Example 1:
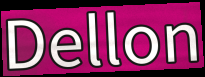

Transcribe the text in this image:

Dellon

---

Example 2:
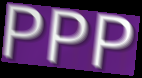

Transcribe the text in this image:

PPP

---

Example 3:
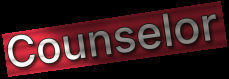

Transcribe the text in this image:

Counselor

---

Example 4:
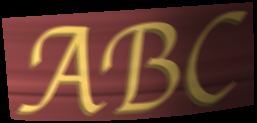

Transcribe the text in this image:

ABC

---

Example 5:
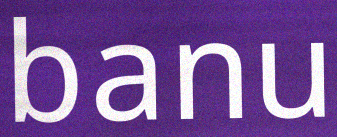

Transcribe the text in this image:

banu